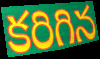
కరిగిన